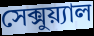
সেক্সুয়্যাল